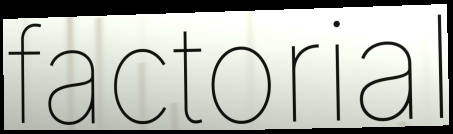
factorial